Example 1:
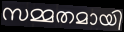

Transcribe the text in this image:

സമ്മതമായി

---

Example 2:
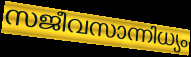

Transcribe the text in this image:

സജീവസാന്നിധ്യം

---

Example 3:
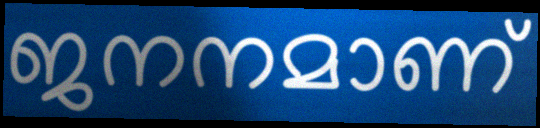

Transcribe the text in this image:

ജനനമാണ്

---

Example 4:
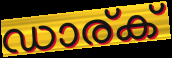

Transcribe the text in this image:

ഡാര്ക്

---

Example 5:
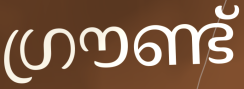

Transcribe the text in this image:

ഗ്രൗണ്ട്